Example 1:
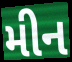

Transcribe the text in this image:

મીન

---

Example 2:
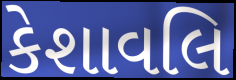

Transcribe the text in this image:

કેશાવલિ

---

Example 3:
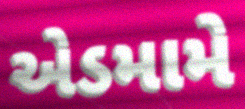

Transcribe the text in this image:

એડમામે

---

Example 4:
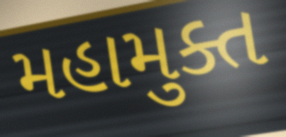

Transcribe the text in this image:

મહામુક્ત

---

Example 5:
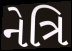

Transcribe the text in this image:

નેત્રિ